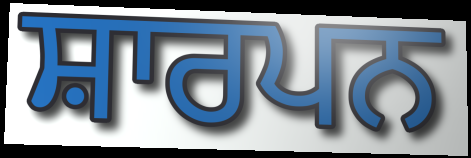
ਸ਼ਾਰਪਨ